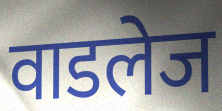
वाडलेज